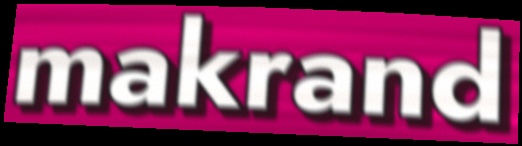
makrand